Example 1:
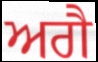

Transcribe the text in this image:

ਅਗੈ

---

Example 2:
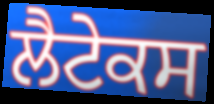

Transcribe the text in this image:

ਲੈਟੇਕਸ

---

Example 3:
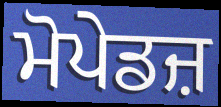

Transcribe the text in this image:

ਮੋਪੇਡਜ਼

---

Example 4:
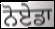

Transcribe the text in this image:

ਨੋਏਡਾ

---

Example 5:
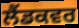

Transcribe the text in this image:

ਲੈਂਡਕਵਰ